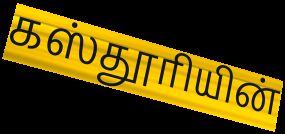
கஸ்தூரியின்